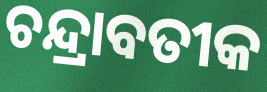
ଚନ୍ଦ୍ରାବତୀକ